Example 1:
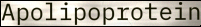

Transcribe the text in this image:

Apolipoprotein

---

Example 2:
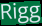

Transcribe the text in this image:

Rigg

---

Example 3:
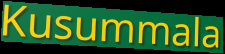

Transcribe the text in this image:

Kusummala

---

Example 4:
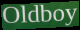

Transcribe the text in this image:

Oldboy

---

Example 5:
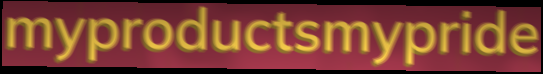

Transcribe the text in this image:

myproductsmypride